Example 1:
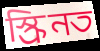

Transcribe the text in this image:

স্ক্ৰিনত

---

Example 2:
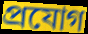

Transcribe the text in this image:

প্ৰযোগ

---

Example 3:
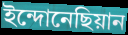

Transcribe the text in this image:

ইন্দোনেছিয়ান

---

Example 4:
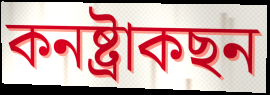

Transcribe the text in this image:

কনষ্ট্ৰাকছন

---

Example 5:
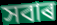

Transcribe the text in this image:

সবাৰ